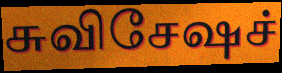
சுவிசேஷச்